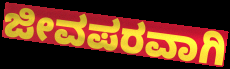
ಜೀವಪರವಾಗಿ